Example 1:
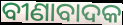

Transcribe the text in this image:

ବୀଣାବାଦକ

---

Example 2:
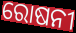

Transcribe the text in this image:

ରୋଷନୀ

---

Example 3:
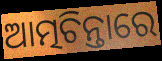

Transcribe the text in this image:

ଆତ୍ମଚିନ୍ତାରେ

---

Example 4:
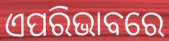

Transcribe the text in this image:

ଏପରିଭାବରେ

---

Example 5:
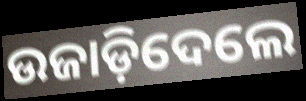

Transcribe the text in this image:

ଉଜାଡ଼ିଦେଲେ